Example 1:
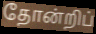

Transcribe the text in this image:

தோன்றிப்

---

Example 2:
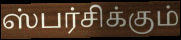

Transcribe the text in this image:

ஸ்பர்சிக்கும்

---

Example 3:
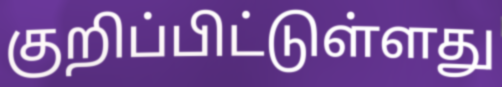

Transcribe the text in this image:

குறிப்பிட்டுள்ளது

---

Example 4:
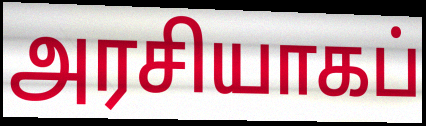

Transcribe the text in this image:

அரசியாகப்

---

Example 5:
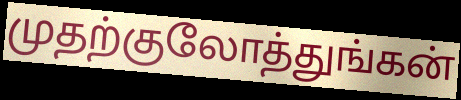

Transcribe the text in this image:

முதற்குலோத்துங்கன்